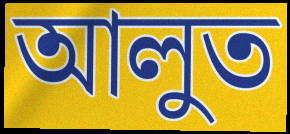
আলুত